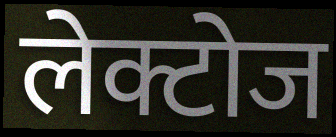
लेक्टोज